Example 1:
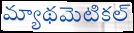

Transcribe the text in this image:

మ్యాథమెటికల్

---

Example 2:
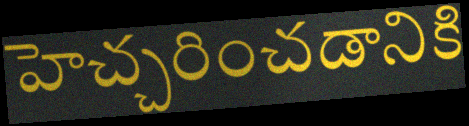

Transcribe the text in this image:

హెచ్చరించడానికి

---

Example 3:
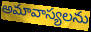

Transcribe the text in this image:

అమావాస్యలను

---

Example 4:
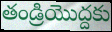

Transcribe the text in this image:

తండ్రియొద్దకు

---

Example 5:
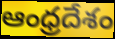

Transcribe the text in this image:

ఆంధ్రదేశం